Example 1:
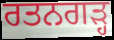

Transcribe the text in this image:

ਰਤਨਗੜ੍ਹ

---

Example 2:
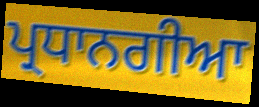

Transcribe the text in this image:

ਪ੍ਰਧਾਨਗੀਆ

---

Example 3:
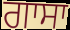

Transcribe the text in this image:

ਗਾਸਾ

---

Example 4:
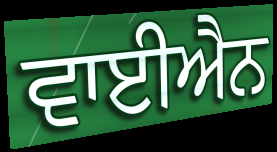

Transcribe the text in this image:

ਵਾਈਐਨ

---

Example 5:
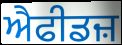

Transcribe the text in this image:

ਐਫੀਡਜ਼